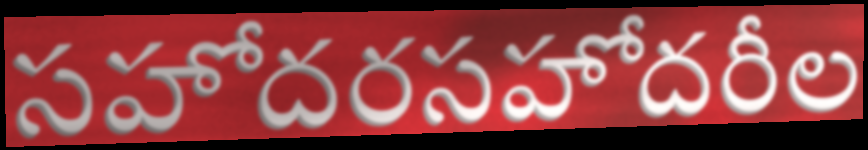
సహోదరసహోదరీల